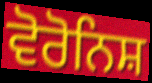
ਵੋਰੋਨਿਸ਼